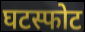
घटस्फोट